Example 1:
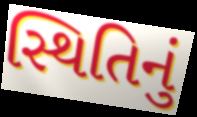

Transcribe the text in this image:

સ્થિતિનું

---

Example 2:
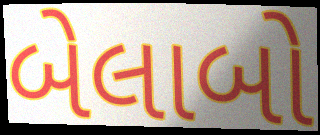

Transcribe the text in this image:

બેલાબો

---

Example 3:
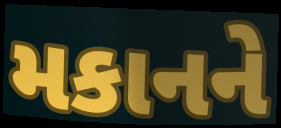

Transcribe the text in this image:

મકાનને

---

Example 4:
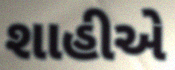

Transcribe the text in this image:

શાહીએ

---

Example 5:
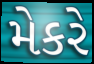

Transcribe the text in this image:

મેકરે